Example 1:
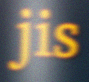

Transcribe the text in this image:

jis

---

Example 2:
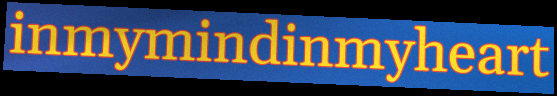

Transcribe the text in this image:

inmymindinmyheart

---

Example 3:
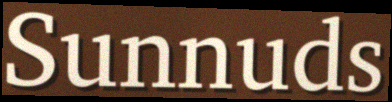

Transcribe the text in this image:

Sunnuds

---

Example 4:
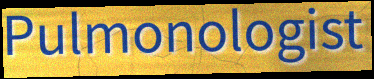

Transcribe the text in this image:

Pulmonologist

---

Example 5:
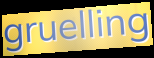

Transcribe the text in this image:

gruelling